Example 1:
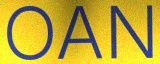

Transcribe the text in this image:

OAN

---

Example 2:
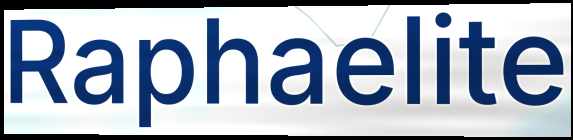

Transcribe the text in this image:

Raphaelite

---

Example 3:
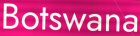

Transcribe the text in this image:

Botswana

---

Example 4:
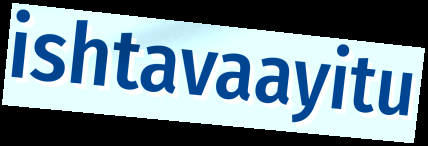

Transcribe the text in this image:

ishtavaayitu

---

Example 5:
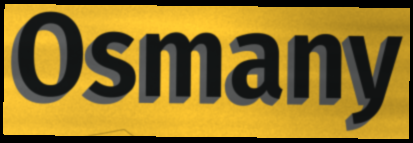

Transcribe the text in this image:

Osmany